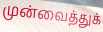
முன்வைத்துக்